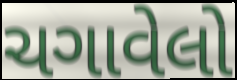
ચગાવેલો